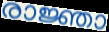
രാജ്ഞാ